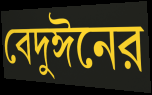
বেদুঈনের